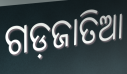
ଗଡ଼ଜାତିଆ